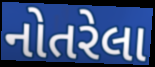
નોતરેલા